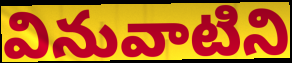
వినువాటిని